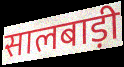
सालबाड़ी